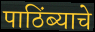
पाठिंब्याचे